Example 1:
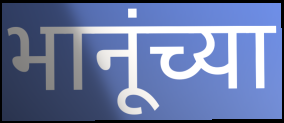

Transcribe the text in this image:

भानूंच्या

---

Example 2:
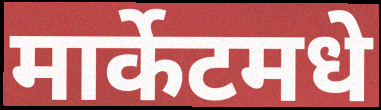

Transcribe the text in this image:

मार्केटमधे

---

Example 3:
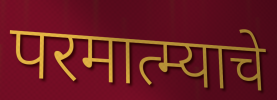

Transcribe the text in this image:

परमात्म्याचे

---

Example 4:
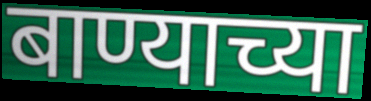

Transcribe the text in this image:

बाण्याच्या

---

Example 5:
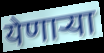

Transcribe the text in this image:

येणार्‍या